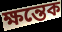
ক্ষন্তেক